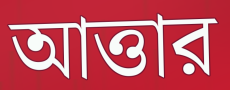
আত্তার